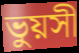
ভুয়সী